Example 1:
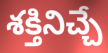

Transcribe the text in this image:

శక్తినిచ్చే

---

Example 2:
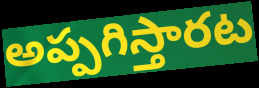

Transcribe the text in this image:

అప్పగిస్తారట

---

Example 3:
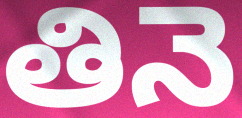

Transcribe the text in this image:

తినె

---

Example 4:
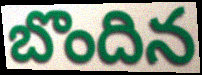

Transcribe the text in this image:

బొందిన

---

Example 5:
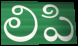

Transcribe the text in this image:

లిపి